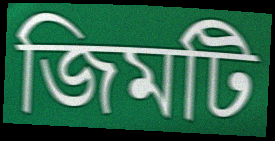
জিমটি